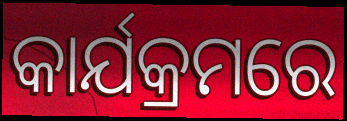
କାର୍ଯକ୍ରମରେ